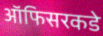
ऑफिसरकडे